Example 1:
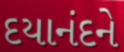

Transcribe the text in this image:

દયાનંદને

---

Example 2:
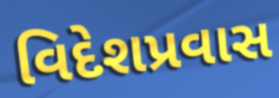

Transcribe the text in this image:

વિદેશપ્રવાસ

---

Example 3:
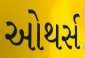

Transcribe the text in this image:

ઓથર્સ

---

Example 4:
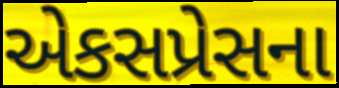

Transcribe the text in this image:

એકસપ્રેસના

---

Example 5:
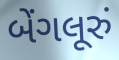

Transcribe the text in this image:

બેંગલૂરું